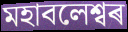
মহাবলেশ্বৰ